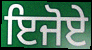
ਇਜੋਏ